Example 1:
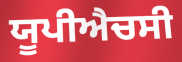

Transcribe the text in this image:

ਯੂਪੀਐਚਸੀ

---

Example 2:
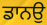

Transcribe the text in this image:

ਡਾਨਉ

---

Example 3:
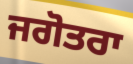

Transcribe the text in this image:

ਜਗੋਤਰਾ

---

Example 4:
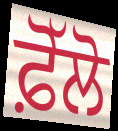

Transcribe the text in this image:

ਫ਼ੋੱਲੋ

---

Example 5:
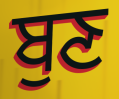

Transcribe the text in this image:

ਬੁਣ